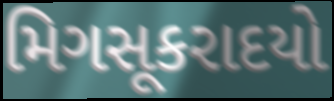
મિગસૂકરાદયો